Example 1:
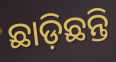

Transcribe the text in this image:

ଛାଡ଼ିଛନ୍ତି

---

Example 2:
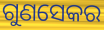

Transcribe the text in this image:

ଗୁଣସେକର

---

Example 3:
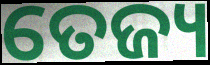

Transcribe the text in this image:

ତେଜ୍ୟ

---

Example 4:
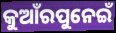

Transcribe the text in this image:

କୁଆଁରପୁନେଇଁ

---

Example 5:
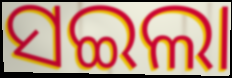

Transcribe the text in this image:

ସଇଲା